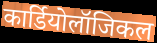
कार्डियोलॉजिकल